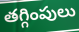
తగ్గింపులు